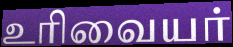
உரிவையர்